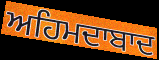
ਅਹਿਮਦਾਬਾਦ